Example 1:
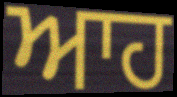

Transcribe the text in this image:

ਆਹ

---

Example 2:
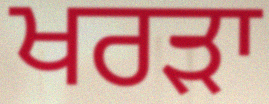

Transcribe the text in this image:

ਖਰੜਾ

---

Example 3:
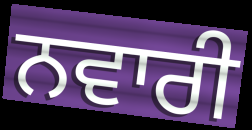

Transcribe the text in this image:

ਨਵਾਰੀ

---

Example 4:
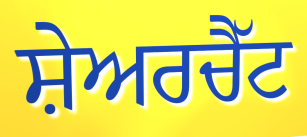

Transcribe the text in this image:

ਸ਼ੇਅਰਚੈੱਟ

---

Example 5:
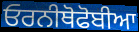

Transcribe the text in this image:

ਓਰਨੀਥੋਫੋਬੀਆ